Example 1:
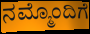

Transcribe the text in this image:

ನಮ್ಮೊಂದಿಗೆ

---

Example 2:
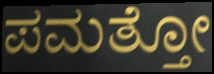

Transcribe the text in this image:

ಪಮತ್ತೋ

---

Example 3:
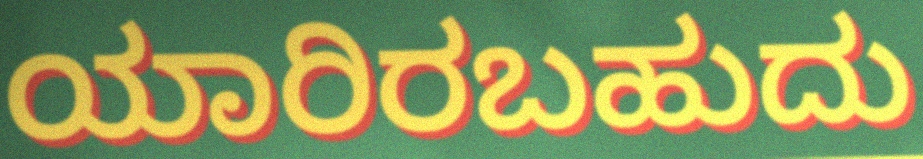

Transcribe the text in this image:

ಯಾರಿರಬಹುದು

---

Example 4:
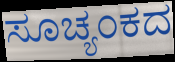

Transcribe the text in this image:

ಸೂಚ್ಯಂಕದ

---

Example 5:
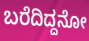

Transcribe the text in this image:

ಬರೆದಿದ್ದನೋ